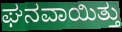
ಘನವಾಯಿತ್ತು